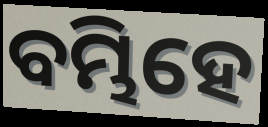
ବମ୍ଭିହେ